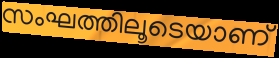
സംഘത്തിലൂടെയാണ്